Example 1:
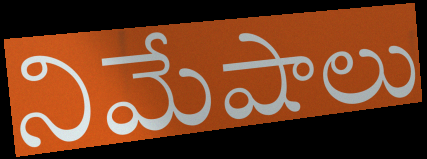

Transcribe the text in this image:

నిమేషాలు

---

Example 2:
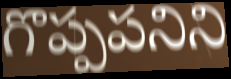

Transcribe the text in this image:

గొప్పపనిని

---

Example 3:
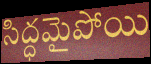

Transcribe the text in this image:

సిద్ధమైపోయి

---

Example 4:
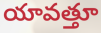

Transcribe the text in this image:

యావత్తూ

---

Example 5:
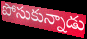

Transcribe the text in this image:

పోసుకున్నాడు